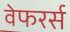
वेफरर्स